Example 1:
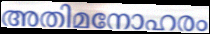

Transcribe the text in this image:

അതിമനോഹരം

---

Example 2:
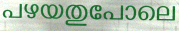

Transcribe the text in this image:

പഴയതുപോലെ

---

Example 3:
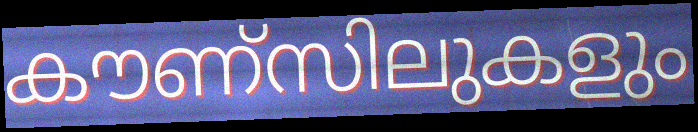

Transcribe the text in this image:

കൗണ്സിലുകളും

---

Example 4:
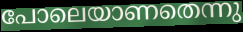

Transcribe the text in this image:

പോലെയാണതെന്നു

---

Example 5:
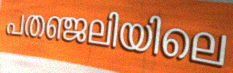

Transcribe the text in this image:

പതഞ്ജലിയിലെ